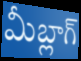
మీబ్లాగ్